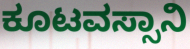
ಕೂಟವಸ್ಸಾನಿ